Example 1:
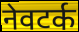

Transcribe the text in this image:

नेवटर्क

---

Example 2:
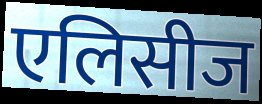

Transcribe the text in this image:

एलिसीज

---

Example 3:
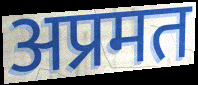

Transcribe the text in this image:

अप्रमत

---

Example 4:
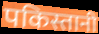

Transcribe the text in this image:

पकिस्तानी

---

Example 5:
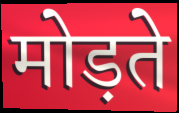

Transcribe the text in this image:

मोड़ते